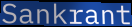
Sankrant